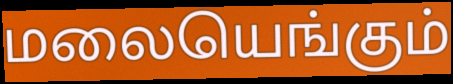
மலையெங்கும்